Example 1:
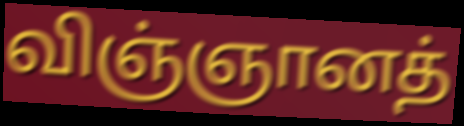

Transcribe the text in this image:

விஞ்ஞானத்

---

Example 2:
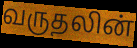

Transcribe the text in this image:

வருதலின்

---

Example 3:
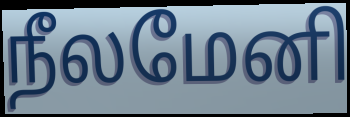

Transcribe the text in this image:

நீலமேனி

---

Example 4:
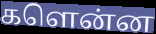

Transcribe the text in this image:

களென்ன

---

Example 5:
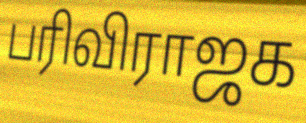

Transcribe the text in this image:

பரிவிராஜக